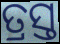
ତ୍ରସ୍ତ